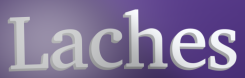
Laches